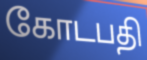
கோடபதி